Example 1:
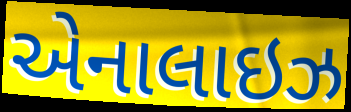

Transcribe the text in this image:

એનાલાઇઝ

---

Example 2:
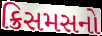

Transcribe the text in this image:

ક્રિસમસનો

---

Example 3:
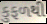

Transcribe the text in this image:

કુફળથી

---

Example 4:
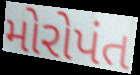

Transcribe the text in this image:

મોરોપંત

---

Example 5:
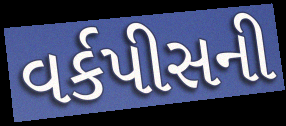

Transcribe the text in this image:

વર્કપીસની